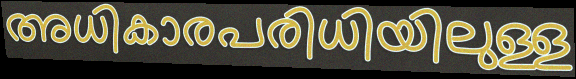
അധികാരപരിധിയിലുള്ള